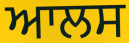
ਆਲਸ